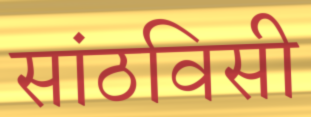
सांठविसी